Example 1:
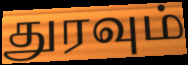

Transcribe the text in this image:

துரவும்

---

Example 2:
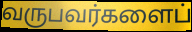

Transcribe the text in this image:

வருபவர்களைப்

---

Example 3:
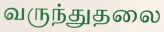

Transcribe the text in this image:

வருந்துதலை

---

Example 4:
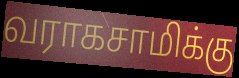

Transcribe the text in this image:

வராகசாமிக்கு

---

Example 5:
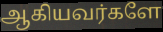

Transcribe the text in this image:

ஆகியவர்களே